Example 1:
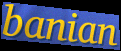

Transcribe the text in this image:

banian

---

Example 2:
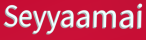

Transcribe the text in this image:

Seyyaamai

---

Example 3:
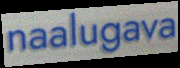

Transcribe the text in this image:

naalugava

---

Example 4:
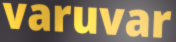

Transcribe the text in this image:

varuvar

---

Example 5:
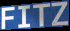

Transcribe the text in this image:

FITZ